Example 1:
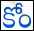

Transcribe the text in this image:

కోం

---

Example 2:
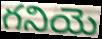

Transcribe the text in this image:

గనియె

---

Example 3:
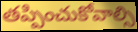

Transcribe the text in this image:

తప్పించుకోవాల్సి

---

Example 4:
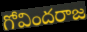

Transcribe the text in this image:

గోవిందరాజ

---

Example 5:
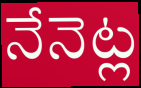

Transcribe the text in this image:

నేనెట్ల